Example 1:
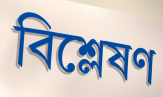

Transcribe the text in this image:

বিশ্লেষণ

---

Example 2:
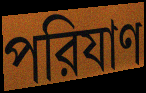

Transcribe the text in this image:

পরিযাণ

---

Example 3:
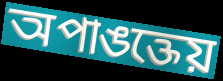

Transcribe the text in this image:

অপাঙক্তেয়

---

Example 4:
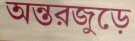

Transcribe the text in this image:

অন্তরজুড়ে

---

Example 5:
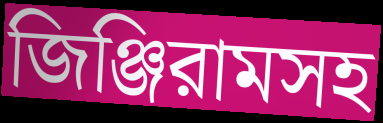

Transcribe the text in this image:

জিঞ্জিরামসহ